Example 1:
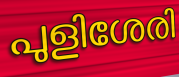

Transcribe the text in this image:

പുളിശേരി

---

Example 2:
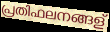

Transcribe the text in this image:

പ്രതിഫലനങ്ങള്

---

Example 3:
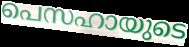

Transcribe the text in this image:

പെസഹായുടെ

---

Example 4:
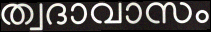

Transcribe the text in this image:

ത്വദാവാസം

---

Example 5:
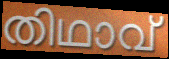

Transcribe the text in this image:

തിഥാവ്